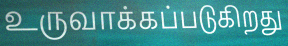
உருவாக்கப்படுகிறது